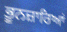
ਭੂਨਜ਼ਾਰਿਆਂ